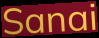
Sanai